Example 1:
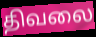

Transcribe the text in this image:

திவலை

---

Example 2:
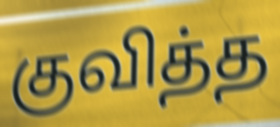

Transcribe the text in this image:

குவித்த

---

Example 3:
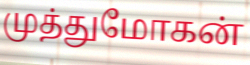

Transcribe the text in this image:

முத்துமோகன்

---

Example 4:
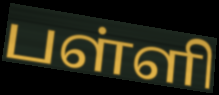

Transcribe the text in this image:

பள்ளி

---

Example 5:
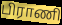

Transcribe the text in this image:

பிராணி